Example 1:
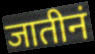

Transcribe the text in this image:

जातीनं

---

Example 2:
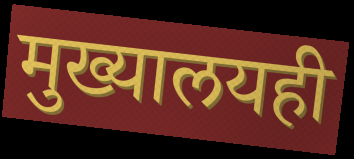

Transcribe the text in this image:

मुख्यालयही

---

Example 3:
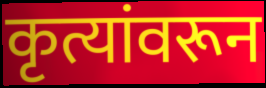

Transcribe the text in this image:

कृत्यांवरून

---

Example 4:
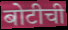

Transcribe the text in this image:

बोटीची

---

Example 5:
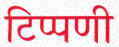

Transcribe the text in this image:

टिप्पणी